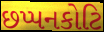
છપ્પનકોટિ